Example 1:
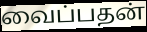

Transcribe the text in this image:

வைப்பதன்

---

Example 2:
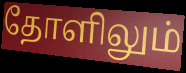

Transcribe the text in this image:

தோளிலும்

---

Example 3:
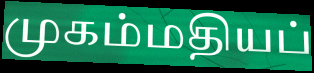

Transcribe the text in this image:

முகம்மதியப்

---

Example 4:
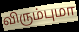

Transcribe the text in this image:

விரும்புமா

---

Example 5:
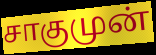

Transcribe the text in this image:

சாகுமுன்